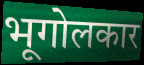
भूगोलकार